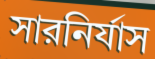
সারনির্যাস